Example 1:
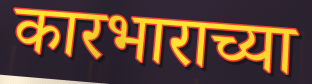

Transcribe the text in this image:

कारभाराच्या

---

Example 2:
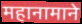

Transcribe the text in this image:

महानामाने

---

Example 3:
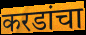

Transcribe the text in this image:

करडांचा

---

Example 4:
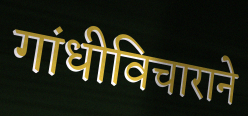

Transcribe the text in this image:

गांधीविचाराने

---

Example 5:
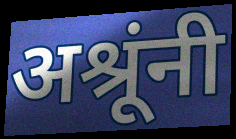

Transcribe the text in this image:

अश्रूंनी